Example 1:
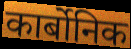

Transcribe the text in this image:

कार्बोनिक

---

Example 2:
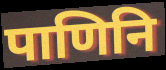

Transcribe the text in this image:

पाणिनि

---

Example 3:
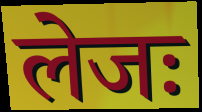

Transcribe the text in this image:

लेजः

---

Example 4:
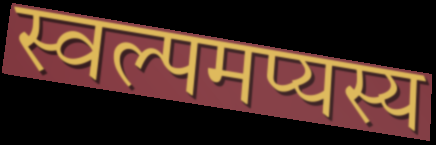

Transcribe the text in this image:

स्वल्पमप्यस्य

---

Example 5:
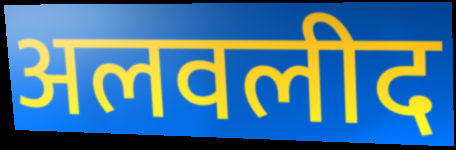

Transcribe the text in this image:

अलवलीद